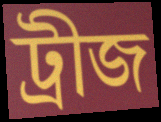
ট্রীজ